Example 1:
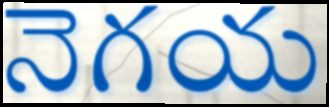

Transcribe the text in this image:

నెగయ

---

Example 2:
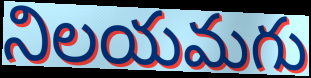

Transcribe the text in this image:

నిలయమగు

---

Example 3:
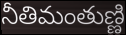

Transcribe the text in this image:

నీతిమంతుణ్ణి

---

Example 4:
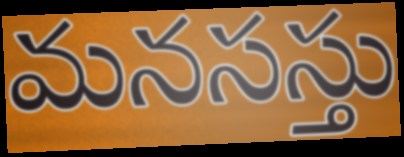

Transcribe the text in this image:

మనసస్తు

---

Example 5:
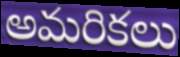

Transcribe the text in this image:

అమరికలు